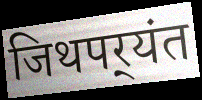
जिथपर्यंत